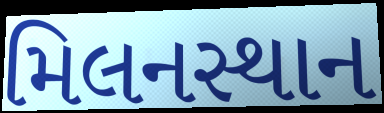
મિલનસ્થાન